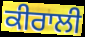
ਕੀਰਾਲੀ